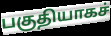
பகுதியாகச்